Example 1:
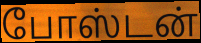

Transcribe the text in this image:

போஸ்டன்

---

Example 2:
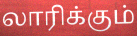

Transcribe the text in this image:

லாரிக்கும்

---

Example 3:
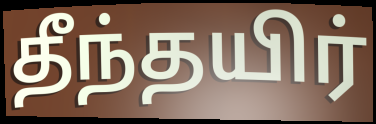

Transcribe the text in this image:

தீந்தயிர்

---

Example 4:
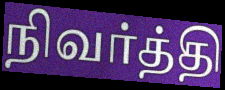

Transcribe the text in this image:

நிவர்த்தி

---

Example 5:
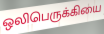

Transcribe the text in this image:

ஒலிபெருக்கியை